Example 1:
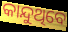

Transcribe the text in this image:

କାନ୍ଦୁଥିବେ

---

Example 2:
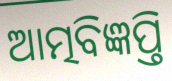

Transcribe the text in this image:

ଆତ୍ମବିଜ୍ଞପ୍ତି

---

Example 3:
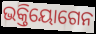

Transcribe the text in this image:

ଭକ୍ତିୟୋଗେନ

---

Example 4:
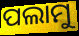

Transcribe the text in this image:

ପଲାମୁ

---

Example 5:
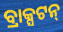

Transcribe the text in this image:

ବ୍ରାକ୍ସଟନ୍